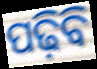
ପଢ଼ିବି